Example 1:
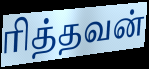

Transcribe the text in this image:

ரித்தவன்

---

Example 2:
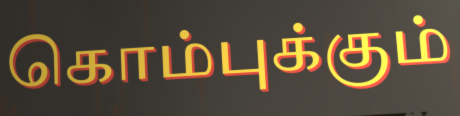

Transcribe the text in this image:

கொம்புக்கும்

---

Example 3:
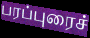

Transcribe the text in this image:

பரப்புரைச்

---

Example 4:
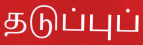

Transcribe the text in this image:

தடுப்புப்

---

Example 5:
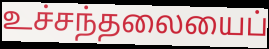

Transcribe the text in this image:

உச்சந்தலையைப்